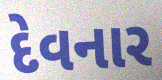
દેવનાર